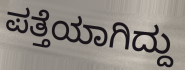
ಪತ್ತೆಯಾಗಿದ್ದು